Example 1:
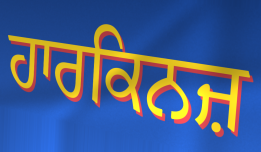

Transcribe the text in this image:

ਹਾਰਕਿਨਜ਼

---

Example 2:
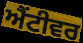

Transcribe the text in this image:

ਐਂਟੀਵਰ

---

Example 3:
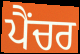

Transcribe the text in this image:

ਪੈਂਚਰ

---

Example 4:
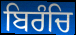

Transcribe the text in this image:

ਬਿਰੰਚਿ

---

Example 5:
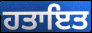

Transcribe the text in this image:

ਹਤਾਇਤ